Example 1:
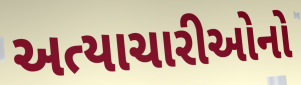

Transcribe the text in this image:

અત્યાચારીઓનો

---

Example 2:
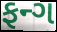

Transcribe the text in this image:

ફન્ગ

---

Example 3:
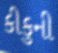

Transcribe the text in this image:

કીકુની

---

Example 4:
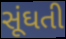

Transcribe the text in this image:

સૂંઘતી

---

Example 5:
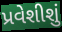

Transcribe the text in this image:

પ્રવેશીશું